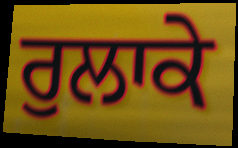
ਰੁਲਾਕੇ